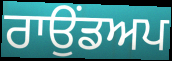
ਰਾਉਂਡਅਪ